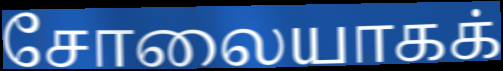
சோலையாகக்